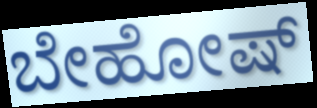
ಬೇಹೋಷ್